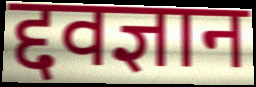
द्दवज्ञान